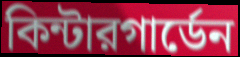
কিন্টারগার্ডেন